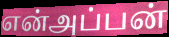
என்அப்பன்